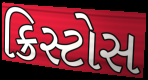
ક્રિસ્ટોસ